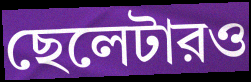
ছেলেটারও